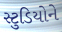
સ્ટુડિયોને